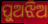
ପୁଅଝିଅ